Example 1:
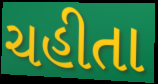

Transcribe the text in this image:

ચહીતા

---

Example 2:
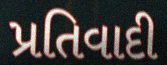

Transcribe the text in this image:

પ્રતિવાદી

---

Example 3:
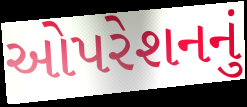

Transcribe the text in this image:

ઓપરેશનનું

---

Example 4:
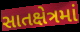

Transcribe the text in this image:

સાતક્ષેત્રમાં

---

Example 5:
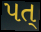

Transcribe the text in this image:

પત્